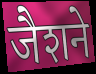
जैशने